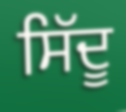
ਸਿੱਦੂ